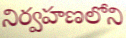
నిర్వహణలోని